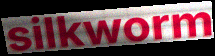
silkworm